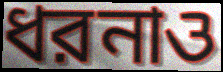
ধরনাও